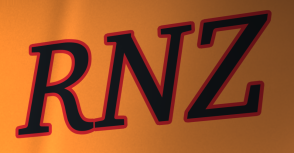
RNZ